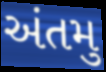
અંતમુ